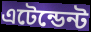
এটেন্ডেন্ট